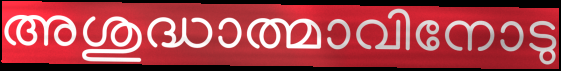
അശുദ്ധാത്മാവിനോടു